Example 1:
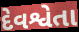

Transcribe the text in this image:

દેવશ્વેતા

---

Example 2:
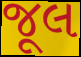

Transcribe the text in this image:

જૂલ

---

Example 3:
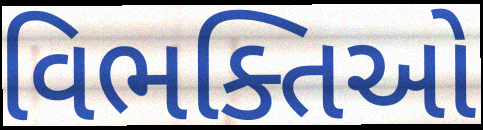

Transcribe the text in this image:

વિભક્તિઓ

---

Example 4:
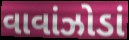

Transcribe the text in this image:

વાવાંઝોડાં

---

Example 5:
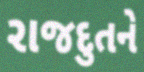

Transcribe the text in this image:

રાજદુતને